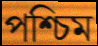
পশ্চিম